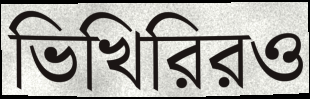
ভিখিরিরও